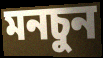
মনচুন